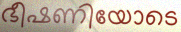
ഭീഷണിയോടെ